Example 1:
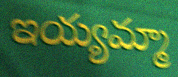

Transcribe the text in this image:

ఇయ్యమ్మా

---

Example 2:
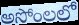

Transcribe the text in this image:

అసోంలలో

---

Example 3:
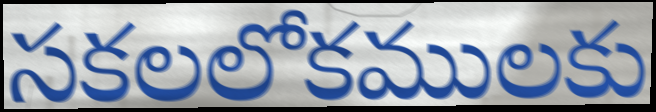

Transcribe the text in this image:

సకలలోకములకు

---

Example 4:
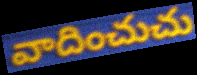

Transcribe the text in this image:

వాదించుచు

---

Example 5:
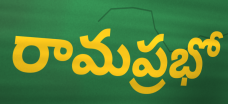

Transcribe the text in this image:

రామప్రభో